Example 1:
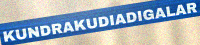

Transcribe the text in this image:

KUNDRAKUDIADIGALAR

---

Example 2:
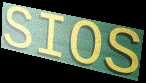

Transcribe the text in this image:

SIOS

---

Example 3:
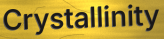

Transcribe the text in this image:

Crystallinity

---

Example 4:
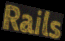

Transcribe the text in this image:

Rails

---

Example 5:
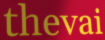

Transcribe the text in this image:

thevai